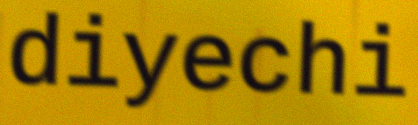
diyechi